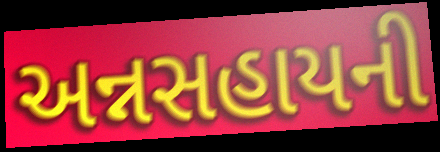
અન્નસહાયની